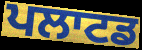
ਪਲਾਟਡ